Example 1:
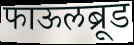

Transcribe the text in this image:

फाऊलब्रूड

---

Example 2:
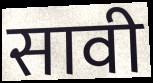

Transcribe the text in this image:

सावी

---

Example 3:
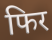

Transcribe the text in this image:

फिर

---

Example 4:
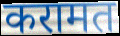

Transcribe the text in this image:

करामत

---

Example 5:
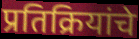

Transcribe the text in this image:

प्रतिक्रियांचे